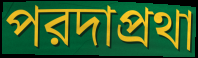
পরদাপ্রথা